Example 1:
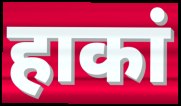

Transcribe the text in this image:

हाकां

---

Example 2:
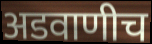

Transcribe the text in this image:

अडवाणीच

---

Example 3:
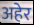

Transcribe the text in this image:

अहेर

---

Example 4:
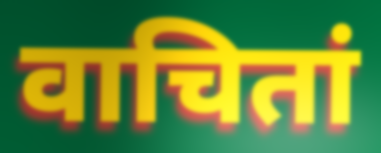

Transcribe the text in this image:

वाचितां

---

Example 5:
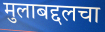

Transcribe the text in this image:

मुलाबद्दलचा